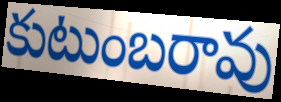
కుటుంబరావు